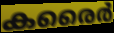
കരൈർ